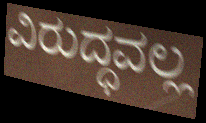
ವಿರುದ್ಧವಲ್ಲ